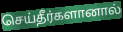
செய்தீர்களானால்